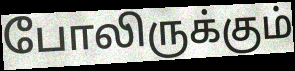
போலிருக்கும்